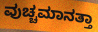
ವುಚ್ಚಮಾನತ್ತಾ